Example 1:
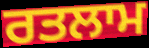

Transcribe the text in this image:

ਰਤਲਾਮ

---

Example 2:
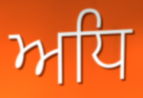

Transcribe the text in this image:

ਅਧਿ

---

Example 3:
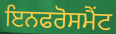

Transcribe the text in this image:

ਇਨਫਰੋਸਮੈਂਟ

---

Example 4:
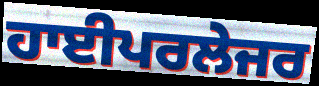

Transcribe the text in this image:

ਹਾਈਪਰਲੇਜਰ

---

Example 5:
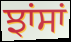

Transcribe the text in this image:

ਝਾਂਸਾਂ